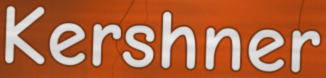
Kershner